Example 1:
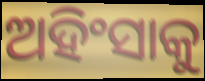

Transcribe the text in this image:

ଅହିଂସାକୁ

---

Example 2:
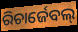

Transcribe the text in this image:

ରିଚାର୍ଜେବଲ୍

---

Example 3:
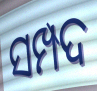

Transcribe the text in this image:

ସମ୍ପଦ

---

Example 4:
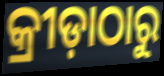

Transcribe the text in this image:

କ୍ରୀଡ଼ାଠାରୁ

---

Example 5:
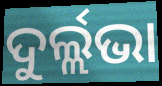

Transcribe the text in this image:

ଦୁର୍ଲ୍ଲଭା